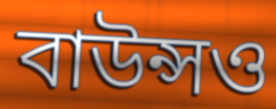
বাউন্সও